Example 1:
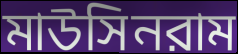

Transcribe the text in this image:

মাউসিনরাম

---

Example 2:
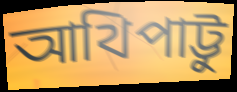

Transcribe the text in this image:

আথিপাট্টু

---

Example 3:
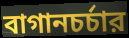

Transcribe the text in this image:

বাগানচর্চার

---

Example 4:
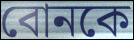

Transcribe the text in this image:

বোনকে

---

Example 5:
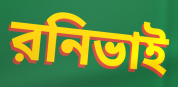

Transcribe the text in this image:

রনিভাই